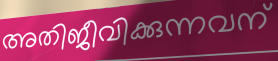
അതിജീവിക്കുന്നവന്